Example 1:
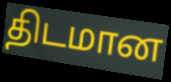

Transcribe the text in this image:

திடமான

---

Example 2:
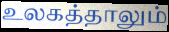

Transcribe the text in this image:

உலகத்தாலும்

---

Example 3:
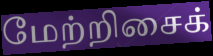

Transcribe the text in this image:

மேற்றிசைக்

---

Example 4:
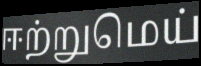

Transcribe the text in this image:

ஈற்றுமெய்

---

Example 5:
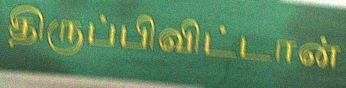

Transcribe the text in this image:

திருப்பிவிட்டான்